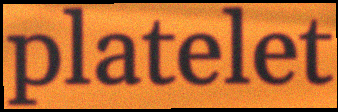
platelet